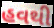
હવથી